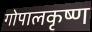
गोपालकृष्ण